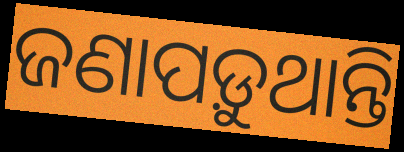
ଜଣାପଡ଼ୁଥାନ୍ତି